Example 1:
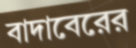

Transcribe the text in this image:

বাদাবেরের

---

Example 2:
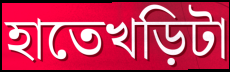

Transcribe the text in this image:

হাতেখড়িটা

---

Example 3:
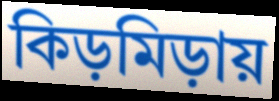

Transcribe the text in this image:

কিড়মিড়ায়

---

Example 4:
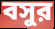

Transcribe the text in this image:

বসুর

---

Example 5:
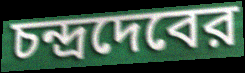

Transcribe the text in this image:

চন্দ্রদেবের